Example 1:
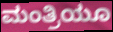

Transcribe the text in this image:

ಮಂತ್ರಿಯೂ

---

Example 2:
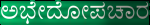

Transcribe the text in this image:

ಅಭೇದೋಪಚಾರ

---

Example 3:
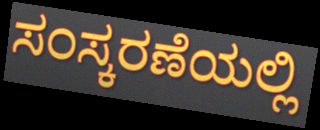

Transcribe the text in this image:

ಸಂಸ್ಕರಣೆಯಲ್ಲಿ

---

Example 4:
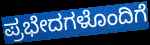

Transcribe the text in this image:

ಪ್ರಭೇದಗಳೊಂದಿಗೆ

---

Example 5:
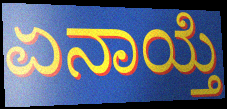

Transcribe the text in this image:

ಏನಾಯ್ತೆ